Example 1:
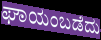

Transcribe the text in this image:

ಘಾಯಂಬಡೆದು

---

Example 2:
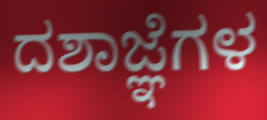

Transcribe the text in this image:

ದಶಾಜ್ಞೆಗಳ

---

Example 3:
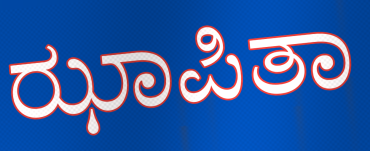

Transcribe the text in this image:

ಝಾಪಿತಾ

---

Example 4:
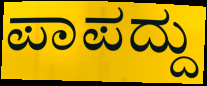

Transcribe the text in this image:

ಪಾಪದ್ದು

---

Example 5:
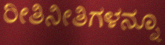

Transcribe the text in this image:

ರೀತಿನೀತಿಗಳನ್ನೂ